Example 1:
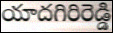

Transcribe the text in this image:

యాదగిరిరెడ్డి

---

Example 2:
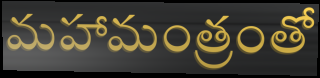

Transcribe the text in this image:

మహామంత్రంతో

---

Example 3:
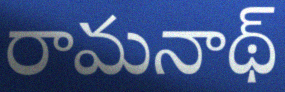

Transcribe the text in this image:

రామనాథ్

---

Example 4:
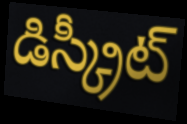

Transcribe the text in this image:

డిస్క్రీట్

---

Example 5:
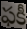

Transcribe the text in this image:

ఫకీ